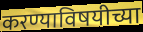
करण्याविषयीच्या